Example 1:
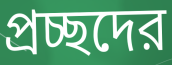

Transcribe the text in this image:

প্রচ্ছদের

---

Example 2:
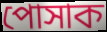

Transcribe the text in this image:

পোসাক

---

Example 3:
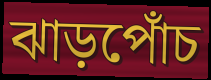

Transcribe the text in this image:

ঝাড়পোঁচ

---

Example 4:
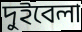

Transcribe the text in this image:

দুইবেলা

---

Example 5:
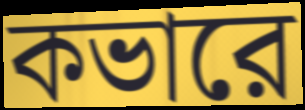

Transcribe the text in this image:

কভারে